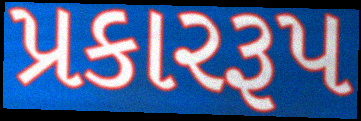
પ્રકારરૂપ